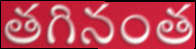
తగినంత